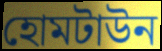
হোমটাউন